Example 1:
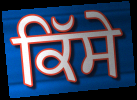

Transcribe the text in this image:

ਕਿੱਸੇ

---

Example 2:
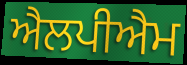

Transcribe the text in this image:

ਐਲਪੀਐਮ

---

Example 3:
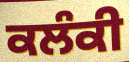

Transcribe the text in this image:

ਕਲੰਕੀ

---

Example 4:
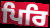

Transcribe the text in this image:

ਪਿਰਿ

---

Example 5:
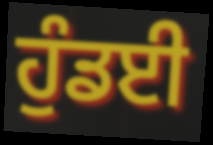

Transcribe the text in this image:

ਹੁੰਡਈ